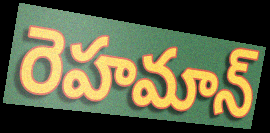
రెహమాన్